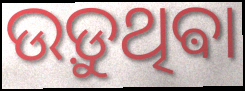
ଉଡ଼ୁଥିଵା